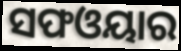
ସଫଓୟାର